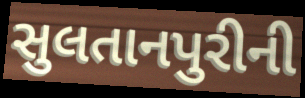
સુલતાનપુરીની